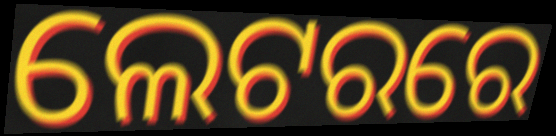
ଲେଟରରେ